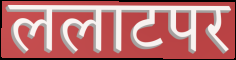
ललाटपर